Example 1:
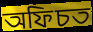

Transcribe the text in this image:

অফিচত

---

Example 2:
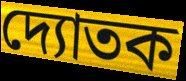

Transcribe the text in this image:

দ্যোতক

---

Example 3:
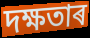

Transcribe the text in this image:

দক্ষতাৰ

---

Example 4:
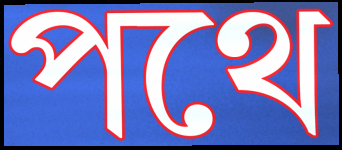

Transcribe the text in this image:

পথে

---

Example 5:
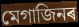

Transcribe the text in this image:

মেগাজিনৰ